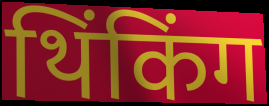
थिंकिंग